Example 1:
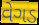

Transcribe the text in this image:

વેગડ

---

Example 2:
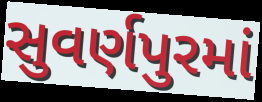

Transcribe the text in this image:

સુવર્ણપુરમાં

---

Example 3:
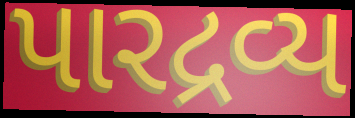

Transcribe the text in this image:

પારદ્રવ્ય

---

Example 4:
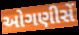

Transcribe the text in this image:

ઓગણીસેં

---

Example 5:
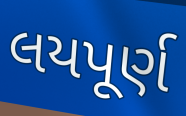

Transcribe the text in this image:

લયપૂર્ણ